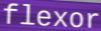
flexor